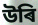
উৰি